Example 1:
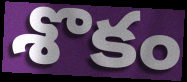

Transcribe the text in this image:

శొకం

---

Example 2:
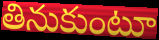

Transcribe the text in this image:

తినుకుంటూ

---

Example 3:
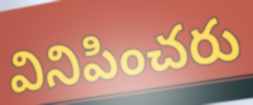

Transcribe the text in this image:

వినిపించరు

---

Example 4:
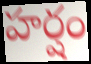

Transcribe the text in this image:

హర్షం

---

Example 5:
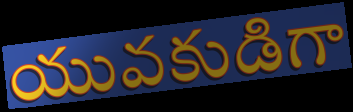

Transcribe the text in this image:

యువకుడిగా